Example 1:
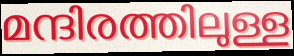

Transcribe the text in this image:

മന്ദിരത്തിലുള്ള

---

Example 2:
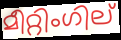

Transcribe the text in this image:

മീറ്റിംഗില്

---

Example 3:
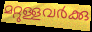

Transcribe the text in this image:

മറ്റുള്ളവർക്കു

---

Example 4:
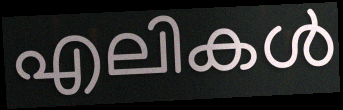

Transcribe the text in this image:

എലികൾ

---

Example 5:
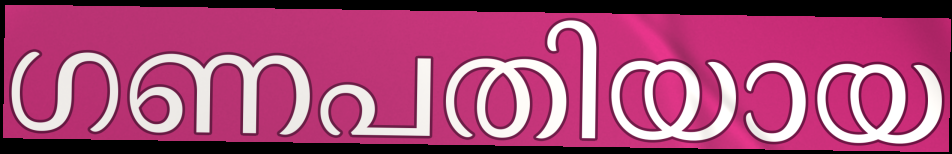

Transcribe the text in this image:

ഗണപതിയായ